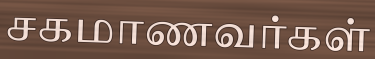
சகமாணவர்கள்